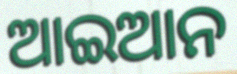
ଆଇଆନ